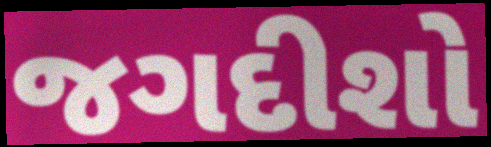
જગદીશો